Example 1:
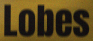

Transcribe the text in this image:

Lobes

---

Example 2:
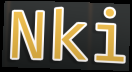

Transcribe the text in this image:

Nki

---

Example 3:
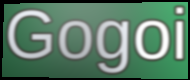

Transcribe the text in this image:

Gogoi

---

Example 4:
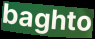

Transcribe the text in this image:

baghto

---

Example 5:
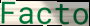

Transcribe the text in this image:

Facto